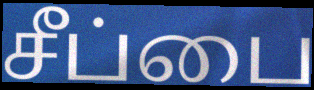
சீப்பை